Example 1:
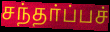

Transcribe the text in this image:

சந்தர்ப்பச்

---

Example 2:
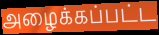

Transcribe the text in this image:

அழைக்கப்பட்ட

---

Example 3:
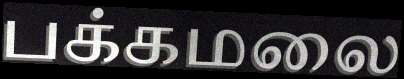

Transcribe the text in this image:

பக்கமலை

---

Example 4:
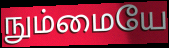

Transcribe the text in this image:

நும்மையே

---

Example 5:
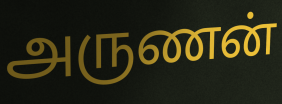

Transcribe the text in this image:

அருணன்